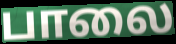
பாலை